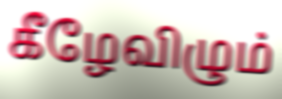
கீழேவிழும்